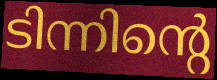
ടിന്നിന്റെ